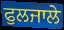
ਫੁਲਜਾਲੇ